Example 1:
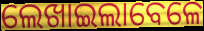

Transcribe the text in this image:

ଲେଖାଇଲାବେଳେ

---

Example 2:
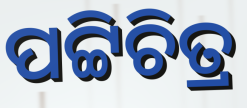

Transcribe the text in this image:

ପଟ୍ଟିଚିତ୍ର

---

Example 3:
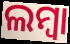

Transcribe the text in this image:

ଲମ୍ବା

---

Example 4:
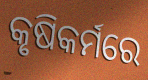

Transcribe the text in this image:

କୃଷିକର୍ମରେ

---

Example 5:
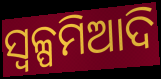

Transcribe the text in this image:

ସ୍ବଳ୍ପମିଆଦି